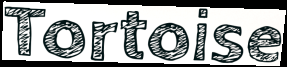
Tortoise